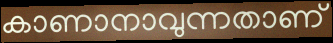
കാണാനാവുന്നതാണ്